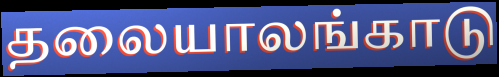
தலையாலங்காடு